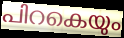
പിറകെയും